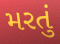
મરતું